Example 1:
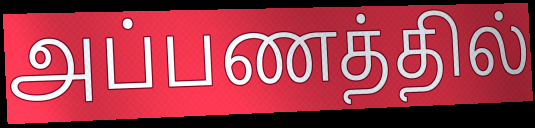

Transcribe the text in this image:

அப்பணத்தில்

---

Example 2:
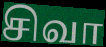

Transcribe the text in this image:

சிவா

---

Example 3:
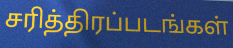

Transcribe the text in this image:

சரித்திரப்படங்கள்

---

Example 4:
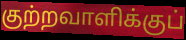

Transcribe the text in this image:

குற்றவாளிக்குப்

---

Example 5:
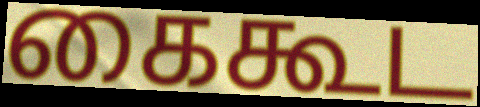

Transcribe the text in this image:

கைகூட